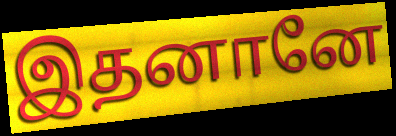
இதனானே